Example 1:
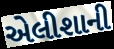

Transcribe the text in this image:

એલીશાની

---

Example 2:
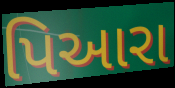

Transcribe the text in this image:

પિઆરા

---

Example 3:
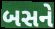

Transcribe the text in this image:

બસને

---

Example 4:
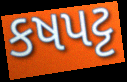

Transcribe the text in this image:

કષપટ્ટ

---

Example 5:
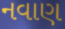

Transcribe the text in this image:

નવાણ